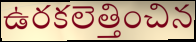
ఉరకలెత్తించిన